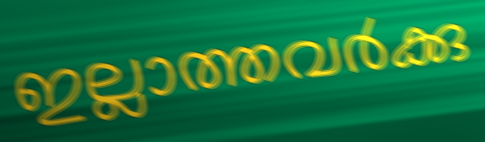
ഇല്ലാത്തവർക്കു